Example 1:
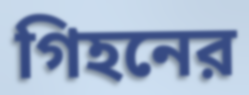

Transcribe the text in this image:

গিহনের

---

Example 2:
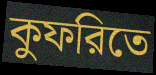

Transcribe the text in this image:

কুফরিতে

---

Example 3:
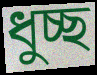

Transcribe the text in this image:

ধুচ্ছ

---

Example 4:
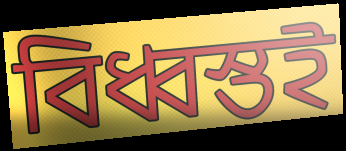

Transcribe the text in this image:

বিধ্বস্তই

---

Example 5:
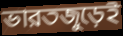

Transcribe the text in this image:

ভারতজুড়েই